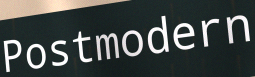
Postmodern